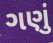
ગણું